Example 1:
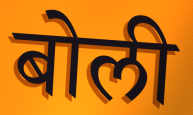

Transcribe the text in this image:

बोली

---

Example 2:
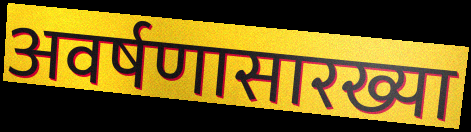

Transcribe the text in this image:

अवर्षणासारख्या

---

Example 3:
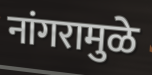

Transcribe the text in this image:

नांगरामुळे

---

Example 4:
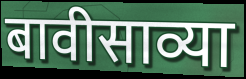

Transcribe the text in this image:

बावीसाव्या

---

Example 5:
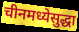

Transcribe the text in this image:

चीनमध्येसुद्धा